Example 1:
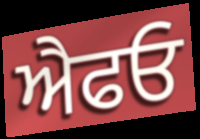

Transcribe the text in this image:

ਐਫਓ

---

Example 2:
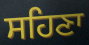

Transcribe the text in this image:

ਸਹਿਣਾ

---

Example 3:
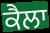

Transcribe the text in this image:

ਕੈਲਾ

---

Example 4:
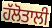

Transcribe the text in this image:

ਹੱਲੋਤਾਲੀ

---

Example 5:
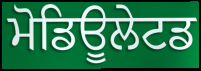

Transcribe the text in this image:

ਮੋਡਿਊਲੇਟਡ